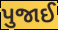
પુજાઈ